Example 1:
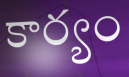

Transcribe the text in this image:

కార్యం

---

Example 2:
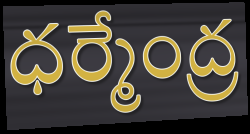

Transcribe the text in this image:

ధర్మేంద్ర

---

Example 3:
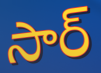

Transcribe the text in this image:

సార్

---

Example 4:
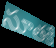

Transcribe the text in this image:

సూతకే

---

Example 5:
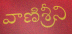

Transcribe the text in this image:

వాణిశ్రీని